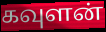
கவுளன்